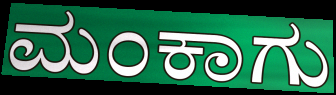
ಮಂಕಾಗು